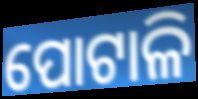
ପୋଟାଳି